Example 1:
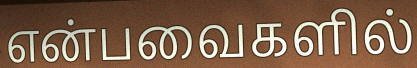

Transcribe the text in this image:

என்பவைகளில்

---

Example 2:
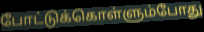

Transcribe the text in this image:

போட்டுக்கொள்ளும்போது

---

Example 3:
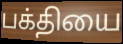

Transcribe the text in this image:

பக்தியை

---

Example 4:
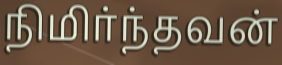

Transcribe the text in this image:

நிமிர்ந்தவன்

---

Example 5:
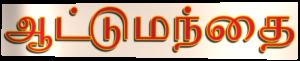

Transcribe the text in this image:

ஆட்டுமந்தை